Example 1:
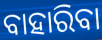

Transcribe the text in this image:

ବାହାରିବା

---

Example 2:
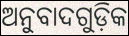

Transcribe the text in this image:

ଅନୁବାଦଗୁଡ଼ିକ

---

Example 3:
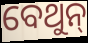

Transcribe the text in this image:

ବେଥୁନ୍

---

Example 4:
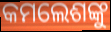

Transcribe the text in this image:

କମଲେଶଙ୍କୁ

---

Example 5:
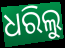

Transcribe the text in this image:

ଧରିଲୁ